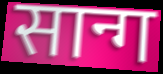
सान्ग